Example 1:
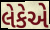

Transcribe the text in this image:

લેકેએ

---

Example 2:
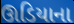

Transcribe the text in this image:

ઊડિયાના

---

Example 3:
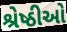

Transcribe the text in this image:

શ્રેષ્ઠીઓ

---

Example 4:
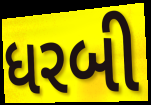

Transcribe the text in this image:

ધરબી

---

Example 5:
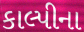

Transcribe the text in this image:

કાલ્પીના